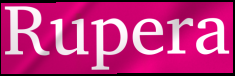
Rupera